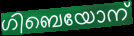
ഗിബെയോന്